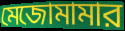
মেজোমামার